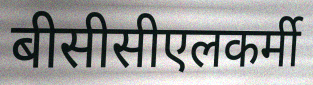
बीसीसीएलकर्मी